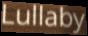
Lullaby